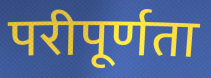
परीपूर्णता